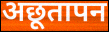
अछूतापन